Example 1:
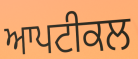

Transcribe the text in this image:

ਆਪਟੀਕਲ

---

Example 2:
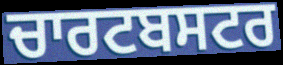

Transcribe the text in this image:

ਚਾਰਟਬਸਟਰ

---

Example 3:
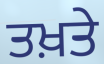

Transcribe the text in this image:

ਤਖ਼ਤੇ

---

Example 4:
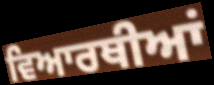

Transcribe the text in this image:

ਵਿਆਰਥੀਆਂ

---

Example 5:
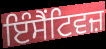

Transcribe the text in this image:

ਇੰਸੈਂਟਿਵਜ਼